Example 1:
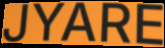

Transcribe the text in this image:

JYARE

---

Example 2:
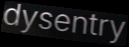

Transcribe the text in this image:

dysentry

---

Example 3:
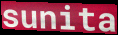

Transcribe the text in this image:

sunita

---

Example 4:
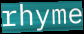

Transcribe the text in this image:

rhyme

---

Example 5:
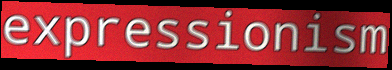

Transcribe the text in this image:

expressionism